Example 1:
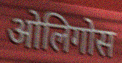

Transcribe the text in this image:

ओलिगोस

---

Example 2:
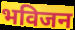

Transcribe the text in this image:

भविजन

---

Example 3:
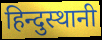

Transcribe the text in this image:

हिन्दुस्थानी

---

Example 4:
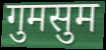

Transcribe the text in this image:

गुमसुम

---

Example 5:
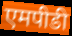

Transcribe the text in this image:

एमपीडी